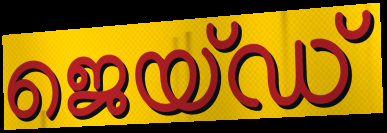
ജെയ്ഡ്